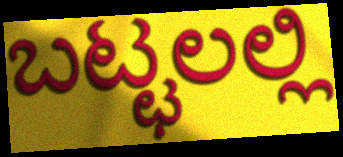
ಬಟ್ಟಲಲ್ಲಿ